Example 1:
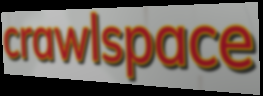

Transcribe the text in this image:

crawlspace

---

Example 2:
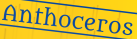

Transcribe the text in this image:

Anthoceros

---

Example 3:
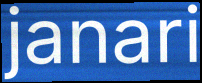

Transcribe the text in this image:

janari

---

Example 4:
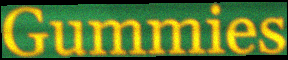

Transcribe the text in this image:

Gummies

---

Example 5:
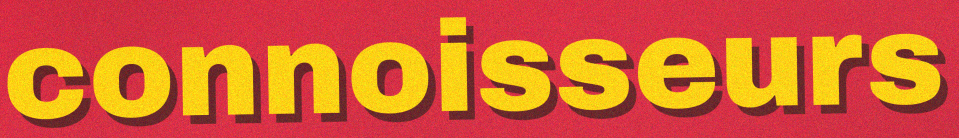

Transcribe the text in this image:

connoisseurs